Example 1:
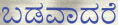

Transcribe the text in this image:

ಬಡವಾದರೆ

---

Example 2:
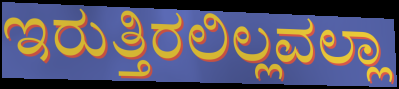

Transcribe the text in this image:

ಇರುತ್ತಿರಲಿಲ್ಲವಲ್ಲಾ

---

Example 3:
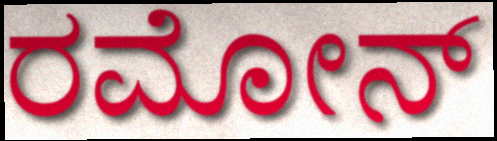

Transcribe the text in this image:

ರಮೋನ್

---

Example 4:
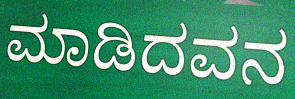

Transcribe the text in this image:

ಮಾಡಿದವನ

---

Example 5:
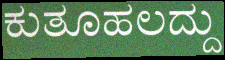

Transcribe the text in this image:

ಕುತೂಹಲದ್ದು